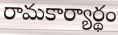
రామకార్యార్థం